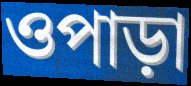
ওপাড়া